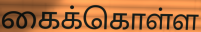
கைக்கொள்ள